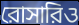
রোসারিও